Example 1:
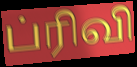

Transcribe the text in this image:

ப்ரிவி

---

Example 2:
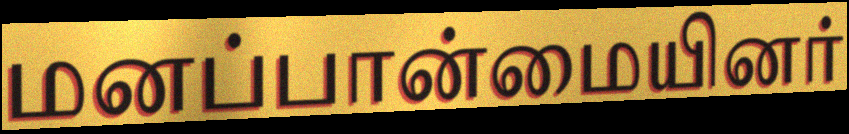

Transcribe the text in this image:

மனப்பான்மையினர்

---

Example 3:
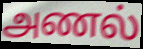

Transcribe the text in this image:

அணல்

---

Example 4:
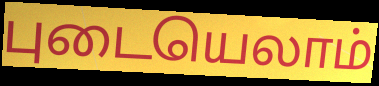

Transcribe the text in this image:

புடையெலாம்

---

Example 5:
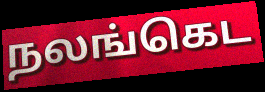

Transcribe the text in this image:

நலங்கெட